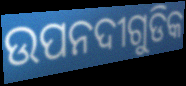
ଉପନଦୀଗୁଡିକ